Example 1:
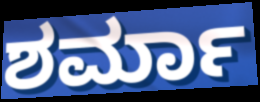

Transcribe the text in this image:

ಶರ್ಮಾ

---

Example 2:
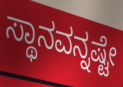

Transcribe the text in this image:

ಸ್ಥಾನವನ್ನಷ್ಟೇ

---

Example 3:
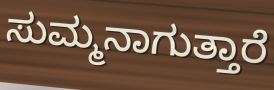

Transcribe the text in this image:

ಸುಮ್ಮನಾಗುತ್ತಾರೆ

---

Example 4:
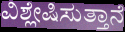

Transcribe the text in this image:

ವಿಶ್ಲೇಷಿಸುತ್ತಾನೆ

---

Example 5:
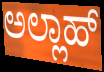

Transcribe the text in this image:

ಅಲ್ಲಾಹ್